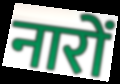
नारों